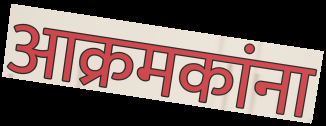
आक्रमकांना